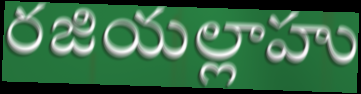
రజియల్లాహు